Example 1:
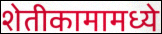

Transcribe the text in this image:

शेतीकामामध्ये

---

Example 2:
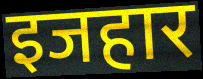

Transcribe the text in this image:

इजहार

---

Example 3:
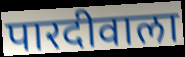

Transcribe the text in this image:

पारदीवाला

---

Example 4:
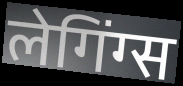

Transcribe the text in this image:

लेगिंग्स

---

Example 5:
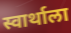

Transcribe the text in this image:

स्वार्थाला